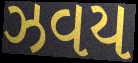
ઝવય